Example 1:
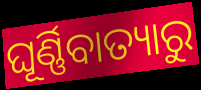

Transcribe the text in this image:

ଘୂର୍ଣ୍ଣିବାତ୍ୟାରୁ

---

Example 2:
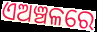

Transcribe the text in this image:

ଏଅଞ୍ଚଳରେ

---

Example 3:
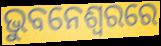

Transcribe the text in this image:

ଭୁବନେଶ୍ବରରେ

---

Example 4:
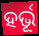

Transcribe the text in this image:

ହର୍ଭୂ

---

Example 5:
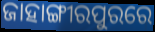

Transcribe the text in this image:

ଜାହାଙ୍ଗୀରପୁରରେ